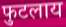
फुटलाय